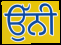
ਉੱਨੀ